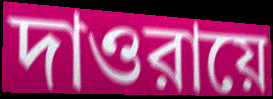
দাওরায়ে